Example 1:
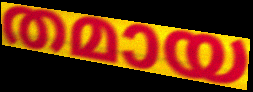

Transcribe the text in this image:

തമായ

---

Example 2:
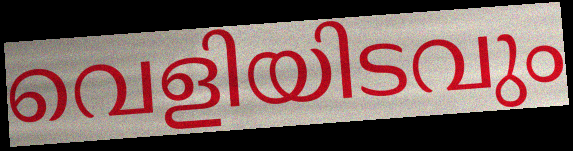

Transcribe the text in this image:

വെളിയിടവും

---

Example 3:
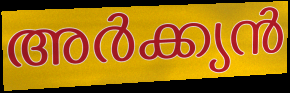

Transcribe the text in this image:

അർക്ക്യൻ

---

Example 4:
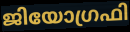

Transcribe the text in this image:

ജിയോഗ്രഫി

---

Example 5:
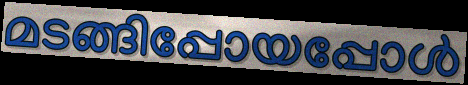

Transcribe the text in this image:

മടങ്ങിപ്പോയപ്പോൾ